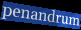
penandrum